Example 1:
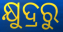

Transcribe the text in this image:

କ୍ଷୁଦ୍ରରୁ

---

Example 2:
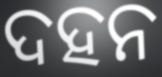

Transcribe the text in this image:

ଦହନ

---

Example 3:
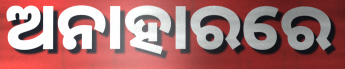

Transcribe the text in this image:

ଅନାହାରରେ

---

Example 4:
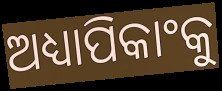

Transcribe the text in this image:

ଅଧ୍ୟାପିକାଂକୁ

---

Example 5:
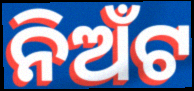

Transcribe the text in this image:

ନିଅଁଟ